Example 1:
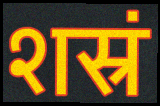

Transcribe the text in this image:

शस्रं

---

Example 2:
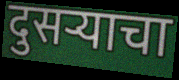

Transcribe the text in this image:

दुसऱ्याचा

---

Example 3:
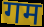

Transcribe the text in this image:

गम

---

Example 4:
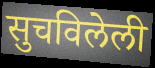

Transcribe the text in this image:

सुचविलेली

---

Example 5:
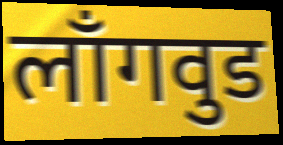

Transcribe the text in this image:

लाँगवुड